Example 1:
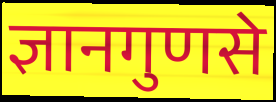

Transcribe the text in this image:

ज्ञानगुणसे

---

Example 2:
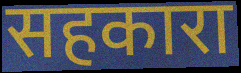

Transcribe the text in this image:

सहकारा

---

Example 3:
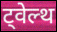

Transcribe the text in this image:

ट्वेल्थ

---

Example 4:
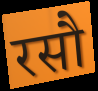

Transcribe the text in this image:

रसौ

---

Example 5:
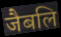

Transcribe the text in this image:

जैबलि